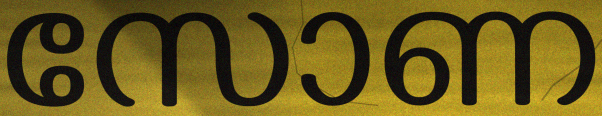
സോണ